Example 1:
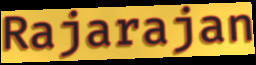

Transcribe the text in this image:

Rajarajan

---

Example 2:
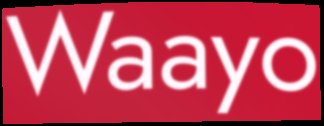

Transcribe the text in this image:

Waayo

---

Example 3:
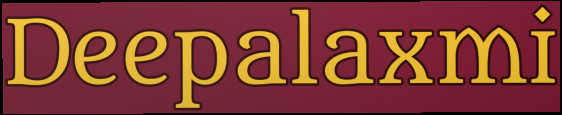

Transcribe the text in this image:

Deepalaxmi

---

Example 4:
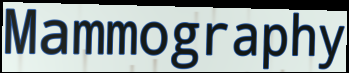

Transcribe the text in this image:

Mammography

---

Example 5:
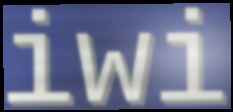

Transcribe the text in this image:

iwi